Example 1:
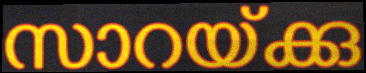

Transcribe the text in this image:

സാറയ്‌ക്കു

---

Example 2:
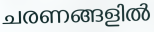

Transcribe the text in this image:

ചരണങ്ങളിൽ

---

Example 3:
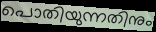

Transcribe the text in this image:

പൊതിയുന്നതിനും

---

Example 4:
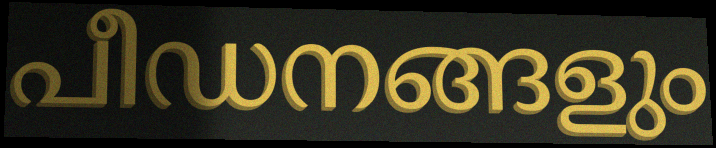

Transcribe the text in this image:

പീഡനങ്ങളും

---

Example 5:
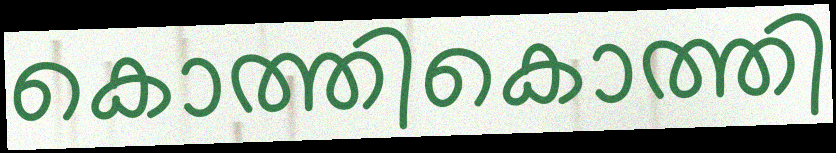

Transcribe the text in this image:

കൊത്തികൊത്തി